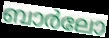
ബാർലോ